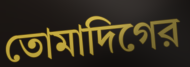
তোমাদিগের